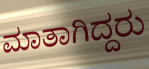
ಮಾತಾಗಿದ್ದರು